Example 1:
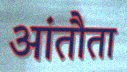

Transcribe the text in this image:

आंतौता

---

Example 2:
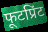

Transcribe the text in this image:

फूटप्रिंट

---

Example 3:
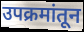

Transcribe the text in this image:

उपक्रमांतून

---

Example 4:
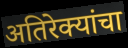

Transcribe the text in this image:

अतिरेक्यांचा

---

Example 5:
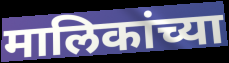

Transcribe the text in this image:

मालिकांच्या